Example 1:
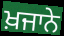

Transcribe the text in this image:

ਖ਼ਜਾਨੇ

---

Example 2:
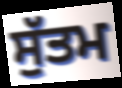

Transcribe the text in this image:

ਸੁੱਤਮ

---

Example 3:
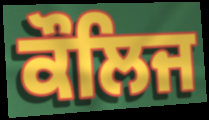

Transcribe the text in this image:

ਕੌਲਿਜ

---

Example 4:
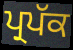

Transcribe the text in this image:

ਪ੍ਰਪੱਕ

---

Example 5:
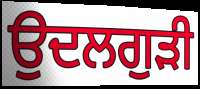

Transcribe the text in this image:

ਉਦਲਗੁੜੀ